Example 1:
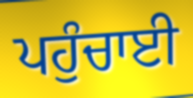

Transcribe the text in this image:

ਪਹੁੰਚਾਈ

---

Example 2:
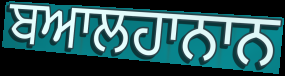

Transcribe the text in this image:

ਬਆਲਹਾਨਾਨ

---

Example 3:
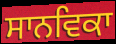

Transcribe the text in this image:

ਸਾਨਵਿਕਾ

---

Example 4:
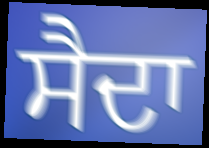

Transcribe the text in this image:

ਸੈਦਾ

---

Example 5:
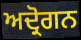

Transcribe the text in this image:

ਅਦ੍ਰੋਗਨ